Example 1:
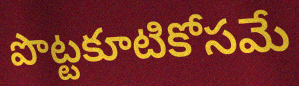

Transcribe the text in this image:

పొట్టకూటికోసమే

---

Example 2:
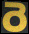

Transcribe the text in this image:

రె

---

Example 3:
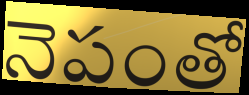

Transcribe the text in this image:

నెపంతో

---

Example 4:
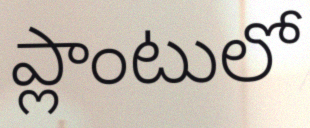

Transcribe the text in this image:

ప్లాంటులో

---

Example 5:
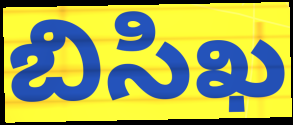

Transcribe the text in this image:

బిసిఖ